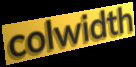
colwidth